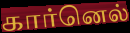
கார்னெல்